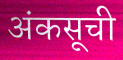
अंकसूची